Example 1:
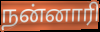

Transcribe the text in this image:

நன்னாரி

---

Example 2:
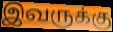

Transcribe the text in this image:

இவருக்கு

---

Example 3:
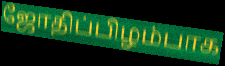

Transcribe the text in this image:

ஜோதிப்பிழம்பாக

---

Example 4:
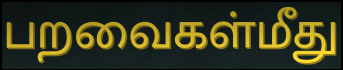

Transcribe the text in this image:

பறவைகள்மீது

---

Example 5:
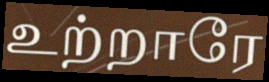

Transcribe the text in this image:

உற்றாரே